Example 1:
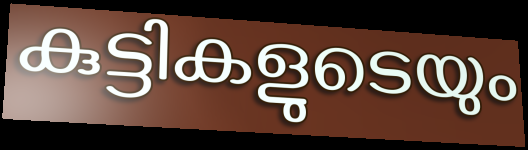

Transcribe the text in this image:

കുട്ടികളുടെയും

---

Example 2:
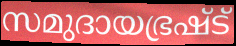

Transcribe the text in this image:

സമുദായഭ്രഷ്ട്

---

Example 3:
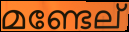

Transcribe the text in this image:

മണ്ടേല്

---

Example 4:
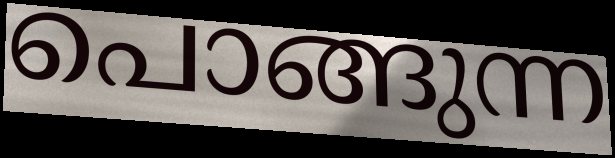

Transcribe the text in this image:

പൊങ്ങുന്ന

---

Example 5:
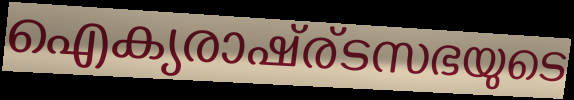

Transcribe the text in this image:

ഐക്യരാഷ്ര്ടസഭയുടെ